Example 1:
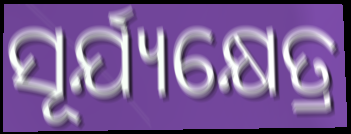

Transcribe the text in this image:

ସୂର୍ଯ୍ୟକ୍ଷେତ୍ର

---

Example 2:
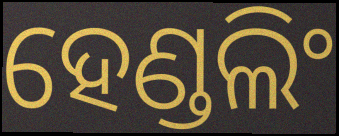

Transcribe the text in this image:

ହେଣ୍ଡଲିଂ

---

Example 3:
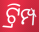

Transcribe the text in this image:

ଟ୍ରିମ୍ପ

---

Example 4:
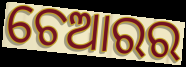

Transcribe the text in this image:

ଚେଆରର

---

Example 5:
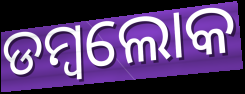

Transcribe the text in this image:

ଡମ୍ବଲୋକ